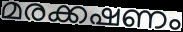
മരക്കഷണം